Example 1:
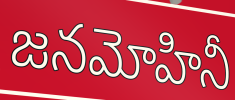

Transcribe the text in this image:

జనమోహినీ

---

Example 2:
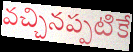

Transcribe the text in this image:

వచ్చినప్పటికే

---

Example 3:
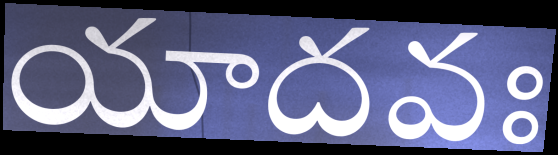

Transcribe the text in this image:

యాదవః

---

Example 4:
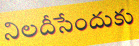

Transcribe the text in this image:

నిలదీసేందుకు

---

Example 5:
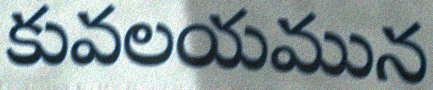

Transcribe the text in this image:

కువలయమున